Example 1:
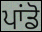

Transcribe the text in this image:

ਪਾਂਡੋ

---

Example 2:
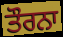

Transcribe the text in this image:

ਤੌਰਨਾ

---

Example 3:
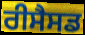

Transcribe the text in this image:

ਰੀਸੈਸਡ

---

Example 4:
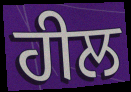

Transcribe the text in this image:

ਹੀਲ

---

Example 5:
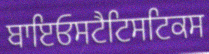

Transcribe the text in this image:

ਬਾਇਓਸਟੈਟਿਸਟਿਕਸ